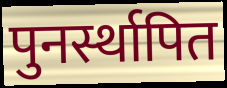
पुनर्स्थापित